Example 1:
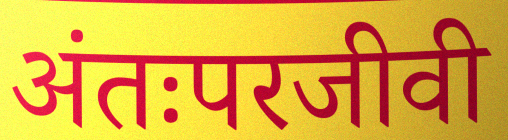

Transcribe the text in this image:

अंतःपरजीवी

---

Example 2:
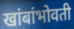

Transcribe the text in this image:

खांबांभोवती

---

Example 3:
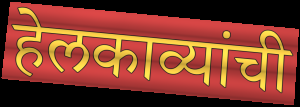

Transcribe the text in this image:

हेलकाव्यांची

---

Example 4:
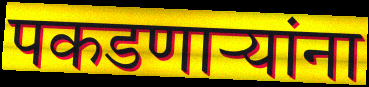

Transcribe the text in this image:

पकडणाऱ्यांना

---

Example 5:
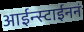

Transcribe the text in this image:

आईन्स्टाईननं